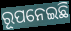
ରୂପନେଇଛି